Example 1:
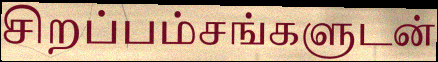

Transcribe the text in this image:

சிறப்பம்சங்களுடன்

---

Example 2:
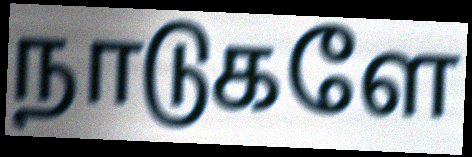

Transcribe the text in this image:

நாடுகளே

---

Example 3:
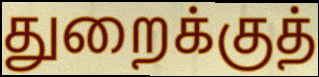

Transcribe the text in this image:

துறைக்குத்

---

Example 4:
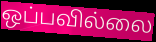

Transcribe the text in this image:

ஒப்பவில்லை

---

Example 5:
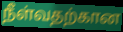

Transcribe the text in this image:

நீள்வதற்கான